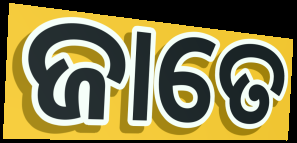
ଜାତେ